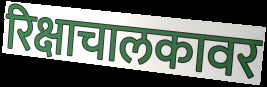
रिक्षाचालकावर